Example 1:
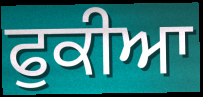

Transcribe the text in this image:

ਫੁਕੀਆ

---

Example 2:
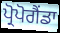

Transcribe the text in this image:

ਪ੍ਰੋਪੋਗੈਂਡਾ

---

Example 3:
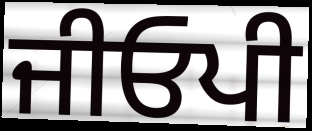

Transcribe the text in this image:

ਜੀਓਪੀ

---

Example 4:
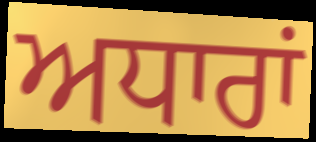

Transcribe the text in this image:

ਅਧਾਰਾਂ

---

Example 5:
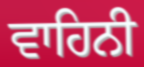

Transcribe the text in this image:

ਵਾਹਿਨੀ